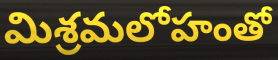
మిశ్రమలోహంతో